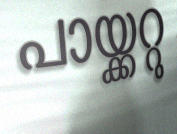
പായ്ക്കറ്റു